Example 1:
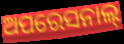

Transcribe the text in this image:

ଅପରେସନାଲ୍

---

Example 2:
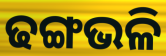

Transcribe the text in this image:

ଢଙ୍ଗଭଳି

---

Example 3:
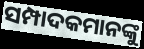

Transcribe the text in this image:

ସମ୍ପାଦକମାନଙ୍କୁ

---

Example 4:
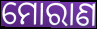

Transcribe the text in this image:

ମୋରାଣ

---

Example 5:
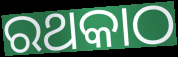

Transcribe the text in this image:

ରଥକାଠ